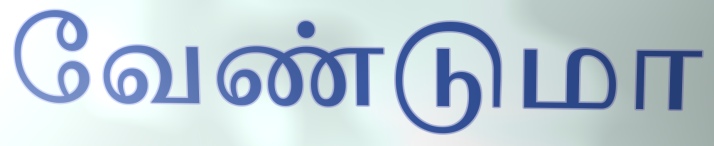
வேண்டுமா